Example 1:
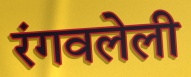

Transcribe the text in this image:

रंगवलेली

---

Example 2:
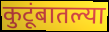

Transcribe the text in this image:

कुटूंबातल्या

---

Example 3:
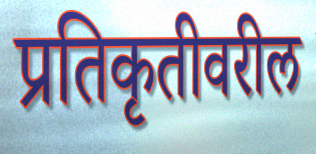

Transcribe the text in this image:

प्रतिकृतीवरील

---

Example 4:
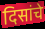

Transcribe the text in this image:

दिसांचे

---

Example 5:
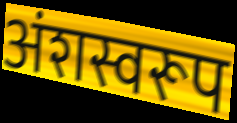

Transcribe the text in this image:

अंशस्वरूप